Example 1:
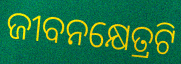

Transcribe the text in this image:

ଜୀବନକ୍ଷେତ୍ରଟି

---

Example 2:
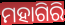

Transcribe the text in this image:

ମହାଗିରି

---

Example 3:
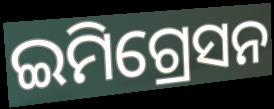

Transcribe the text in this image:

ଇମିଗ୍ରେସନ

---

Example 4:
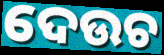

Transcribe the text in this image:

ଦେଉଚ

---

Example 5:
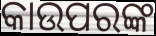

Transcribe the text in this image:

କାଉପରଙ୍କ